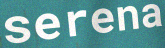
serena